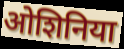
ओशिनिया